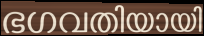
ഭഗവതിയായി